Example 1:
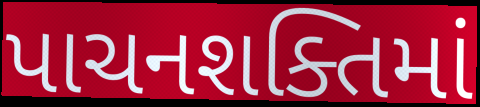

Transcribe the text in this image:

પાચનશક્તિમાં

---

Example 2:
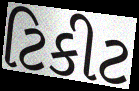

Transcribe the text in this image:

ટિકીટ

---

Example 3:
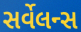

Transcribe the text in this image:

સર્વેલન્સ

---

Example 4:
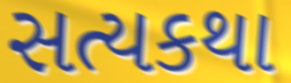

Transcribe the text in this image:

સત્યકથા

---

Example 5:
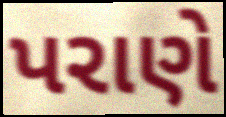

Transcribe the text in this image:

પરાણે